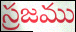
స్రజము